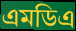
এমডিএ